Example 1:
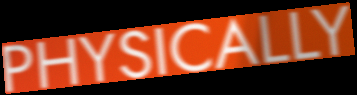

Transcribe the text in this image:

PHYSICALLY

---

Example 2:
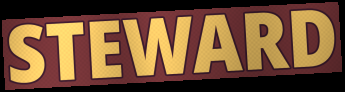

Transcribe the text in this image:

STEWARD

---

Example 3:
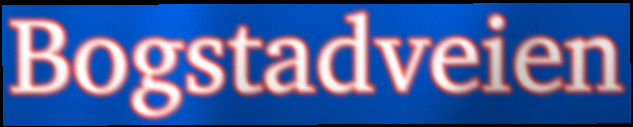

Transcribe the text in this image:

Bogstadveien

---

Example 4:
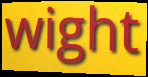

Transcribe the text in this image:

wight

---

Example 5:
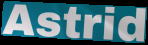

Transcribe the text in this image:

Astrid